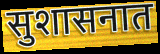
सुशासनात